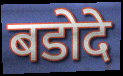
बडोदे